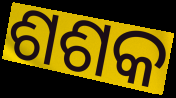
ଶଶକ